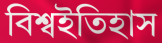
বিশ্বইতিহাস